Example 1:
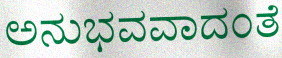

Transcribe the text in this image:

ಅನುಭವವಾದಂತೆ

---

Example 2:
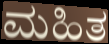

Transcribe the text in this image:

ಮಹಿತ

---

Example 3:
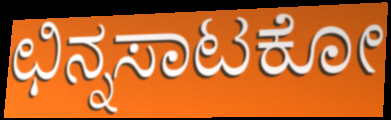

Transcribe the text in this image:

ಛಿನ್ನಸಾಟಕೋ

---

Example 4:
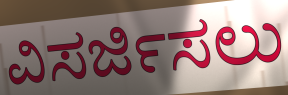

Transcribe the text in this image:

ವಿಸರ್ಜಿಸಲು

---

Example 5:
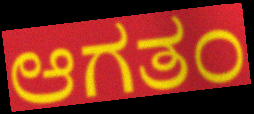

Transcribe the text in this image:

ಆಗತಂ